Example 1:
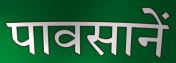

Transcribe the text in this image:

पावसानें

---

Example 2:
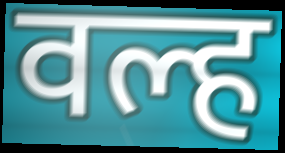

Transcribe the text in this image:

वल्ह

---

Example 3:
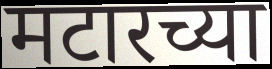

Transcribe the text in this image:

मटारच्या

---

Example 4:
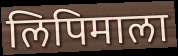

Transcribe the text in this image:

लिपिमाला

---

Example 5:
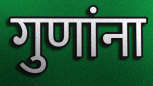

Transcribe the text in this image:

गुणांना